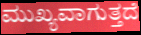
ಮುಖ್ಯವಾಗುತ್ತದೆ